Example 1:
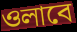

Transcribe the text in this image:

ওলাবে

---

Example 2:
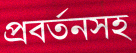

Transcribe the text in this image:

প্রবর্তনসহ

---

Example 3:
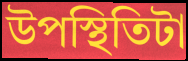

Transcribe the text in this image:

উপস্থিতিটা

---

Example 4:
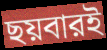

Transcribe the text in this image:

ছয়বারই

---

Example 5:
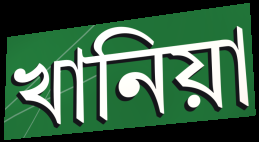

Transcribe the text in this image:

খানিয়া